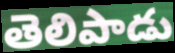
తెలిపాడు